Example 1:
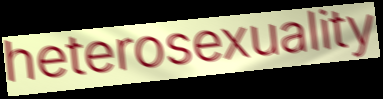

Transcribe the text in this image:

heterosexuality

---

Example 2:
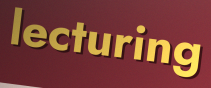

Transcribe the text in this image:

lecturing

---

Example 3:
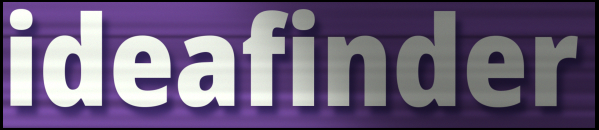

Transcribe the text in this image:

ideafinder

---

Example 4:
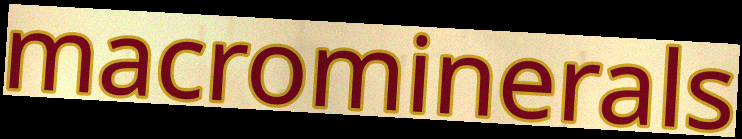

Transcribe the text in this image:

macrominerals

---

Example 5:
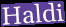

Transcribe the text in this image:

Haldi